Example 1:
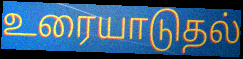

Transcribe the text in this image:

உரையாடுதல்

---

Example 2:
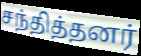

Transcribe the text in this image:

சந்தித்தனர்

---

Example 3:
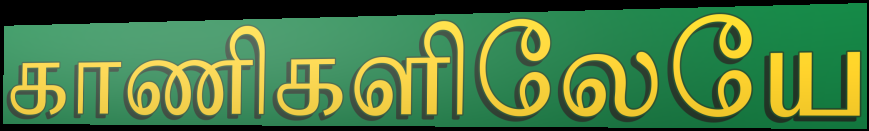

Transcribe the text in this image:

காணிகளிலேயே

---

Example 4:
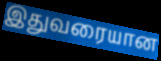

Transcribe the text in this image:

இதுவரையான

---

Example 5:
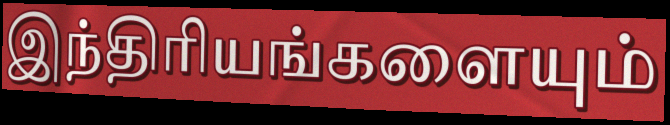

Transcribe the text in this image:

இந்திரியங்களையும்